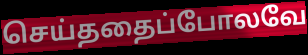
செய்ததைப்போலவே